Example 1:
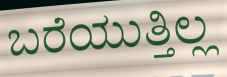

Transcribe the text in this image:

ಬರೆಯುತ್ತಿಲ್ಲ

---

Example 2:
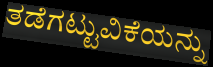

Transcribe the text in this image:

ತಡೆಗಟ್ಟುವಿಕೆಯನ್ನು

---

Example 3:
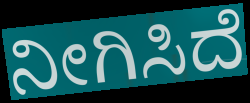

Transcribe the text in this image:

ನೀಗಿಸಿದೆ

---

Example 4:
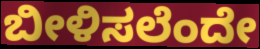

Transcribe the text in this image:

ಬೀಳಿಸಲೆಂದೇ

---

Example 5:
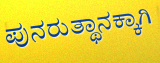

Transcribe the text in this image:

ಪುನರುತ್ಥಾನಕ್ಕಾಗಿ